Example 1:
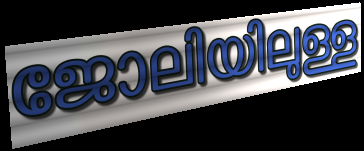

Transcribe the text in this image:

ജോലിയിലുള്ള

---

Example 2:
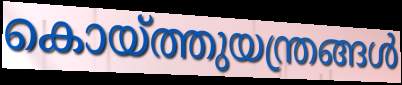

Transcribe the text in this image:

കൊയ്ത്തുയന്ത്രങ്ങൾ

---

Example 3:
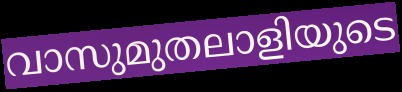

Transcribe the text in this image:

വാസുമുതലാളിയുടെ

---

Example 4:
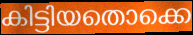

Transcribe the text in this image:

കിട്ടിയതൊക്കെ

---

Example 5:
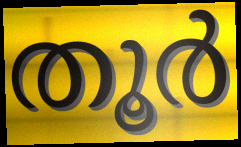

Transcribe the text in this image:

തൂർ